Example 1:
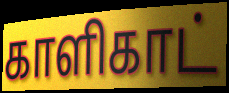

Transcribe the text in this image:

காளிகாட்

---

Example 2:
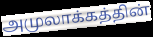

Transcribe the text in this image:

அமுலாக்கத்தின்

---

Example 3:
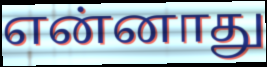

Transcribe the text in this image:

என்னாது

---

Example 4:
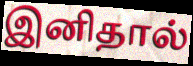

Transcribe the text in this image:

இனிதால்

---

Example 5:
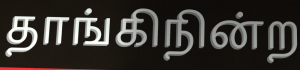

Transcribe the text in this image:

தாங்கிநின்ற